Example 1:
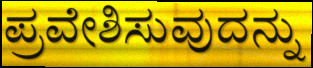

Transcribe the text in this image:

ಪ್ರವೇಶಿಸುವುದನ್ನು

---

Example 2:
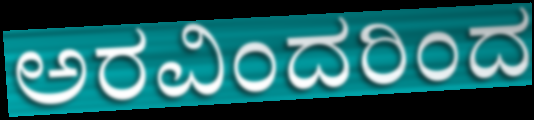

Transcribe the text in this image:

ಅರವಿಂದರಿಂದ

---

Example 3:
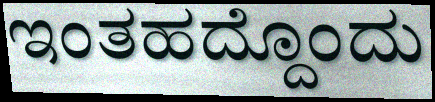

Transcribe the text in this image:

ಇಂತಹದ್ದೊಂದು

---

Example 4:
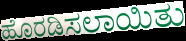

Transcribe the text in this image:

ಹೊರಡಿಸಲಾಯಿತು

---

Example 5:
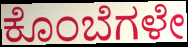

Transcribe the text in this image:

ಕೊಂಬೆಗಳೇ